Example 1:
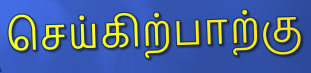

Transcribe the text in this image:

செய்கிற்பாற்கு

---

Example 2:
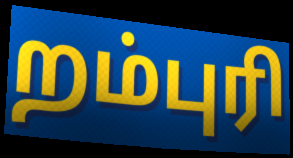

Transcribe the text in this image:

றம்புரி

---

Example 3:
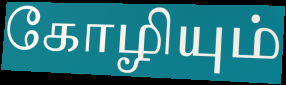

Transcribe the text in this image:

கோழியும்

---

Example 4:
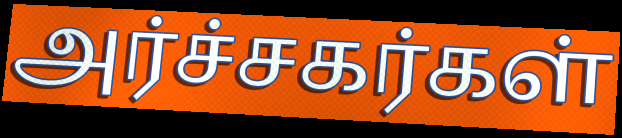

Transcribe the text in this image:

அர்ச்சகர்கள்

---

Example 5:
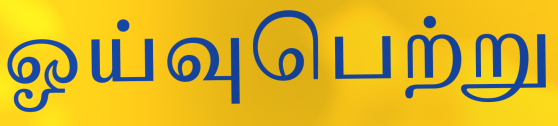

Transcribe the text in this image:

ஓய்வுபெற்று